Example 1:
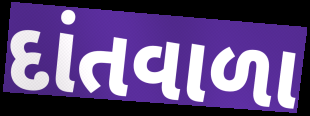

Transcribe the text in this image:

દાંતવાળા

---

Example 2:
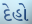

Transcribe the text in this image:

દેહો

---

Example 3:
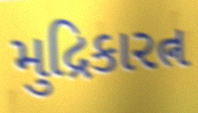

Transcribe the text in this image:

મુદ્રિકારત્ન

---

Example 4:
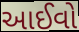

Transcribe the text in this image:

આઈવો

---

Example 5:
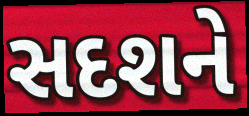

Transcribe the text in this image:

સદશને